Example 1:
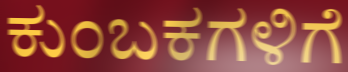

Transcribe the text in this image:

ಕುಂಬಕಗಳಿಗೆ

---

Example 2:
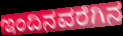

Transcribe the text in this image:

ಇಂದಿನವರೆಗಿನ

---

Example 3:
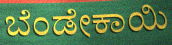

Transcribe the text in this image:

ಬೆಂಡೇಕಾಯಿ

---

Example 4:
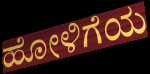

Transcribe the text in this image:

ಹೋಳಿಗೆಯ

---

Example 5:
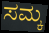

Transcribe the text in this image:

ಸಮ್ಕ